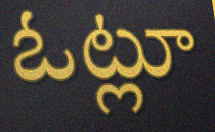
ఓట్లూ